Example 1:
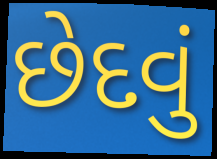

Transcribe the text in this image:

છેદવું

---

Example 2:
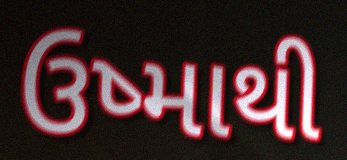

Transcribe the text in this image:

ઉષ્માથી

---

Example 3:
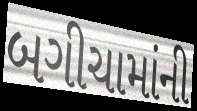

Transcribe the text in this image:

બગીચામાંની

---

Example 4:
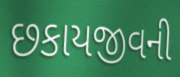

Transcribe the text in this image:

છકાયજીવની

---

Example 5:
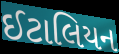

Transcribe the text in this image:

ઈટાલિયન